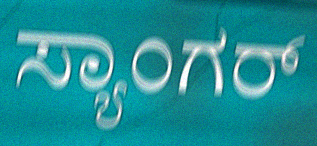
ಸ್ಯಾಂಗರ್